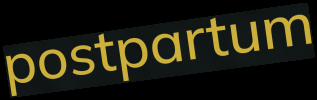
postpartum